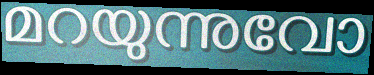
മറയുന്നുവോ